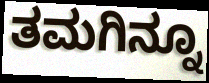
ತಮಗಿನ್ನೂ